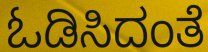
ಓಡಿಸಿದಂತೆ